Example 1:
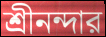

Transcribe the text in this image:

শ্রীনন্দার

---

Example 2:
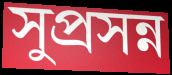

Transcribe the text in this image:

সুপ্রসন্ন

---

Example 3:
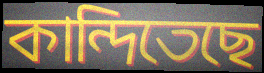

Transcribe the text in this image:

কান্দিতেছে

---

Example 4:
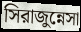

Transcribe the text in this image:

সিরাজুন্নেসা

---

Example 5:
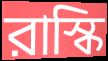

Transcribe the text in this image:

রাস্কি